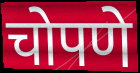
चोपणे